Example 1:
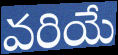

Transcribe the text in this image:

వరియే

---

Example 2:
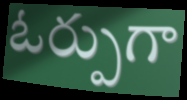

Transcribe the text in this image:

ఓర్పుగా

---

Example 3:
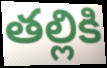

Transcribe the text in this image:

తల్లికి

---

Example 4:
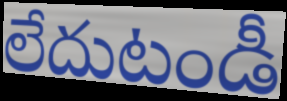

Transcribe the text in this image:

లేదుటండీ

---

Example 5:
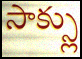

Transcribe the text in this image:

సాక్స్లు